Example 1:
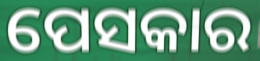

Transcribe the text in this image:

ପେସକାର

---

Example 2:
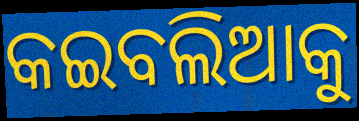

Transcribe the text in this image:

କଇବଲିଆକୁ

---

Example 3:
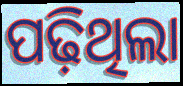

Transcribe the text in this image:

ପଢ଼ିଥିଲା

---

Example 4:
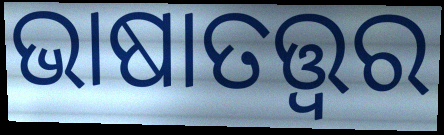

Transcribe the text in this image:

ଭାଷାତତ୍ତ୍ଵର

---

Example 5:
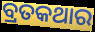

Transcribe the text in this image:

ବ୍ରତକଥାର